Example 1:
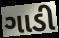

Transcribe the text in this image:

ગાડી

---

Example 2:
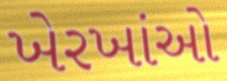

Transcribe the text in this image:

ખેરખાંઓ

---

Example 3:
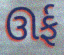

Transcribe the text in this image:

ઊર્ફ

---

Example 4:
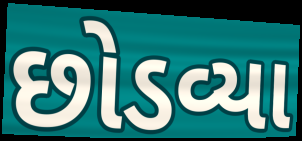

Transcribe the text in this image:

છોડવ્યા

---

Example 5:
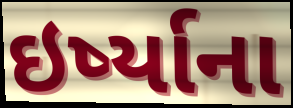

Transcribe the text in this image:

ઇર્ષ્યાના